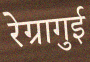
रेग्रागुई